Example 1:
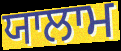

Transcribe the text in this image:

ਯਾਲਾਮ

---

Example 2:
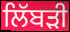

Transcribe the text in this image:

ਲਿੱਬੜੀ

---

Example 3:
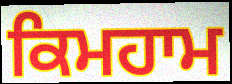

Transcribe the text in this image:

ਕਿਮਹਾਮ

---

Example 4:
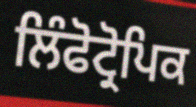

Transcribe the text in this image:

ਲਿੰਫੋਟ੍ਰੋਪਿਕ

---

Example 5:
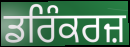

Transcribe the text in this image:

ਡਰਿੰਕਰਜ਼